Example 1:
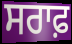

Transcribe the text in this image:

ਸਰਾਫ਼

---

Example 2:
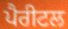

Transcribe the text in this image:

ਪੈਰੀਟਲ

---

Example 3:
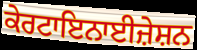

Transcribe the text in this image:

ਕੇਰਟਾਇਨਾਈਜ਼ੇਸ਼ਨ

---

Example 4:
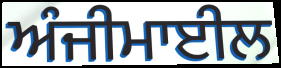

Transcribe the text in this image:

ਅੰਜੀਮਾਈਲ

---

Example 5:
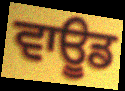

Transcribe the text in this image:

ਵਾਊਡ